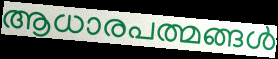
ആധാരപത്മങ്ങൾ